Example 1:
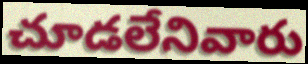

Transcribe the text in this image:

చూడలేనివారు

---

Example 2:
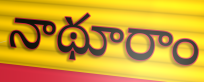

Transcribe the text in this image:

నాథూరాం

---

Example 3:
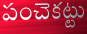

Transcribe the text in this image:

పంచెకట్టు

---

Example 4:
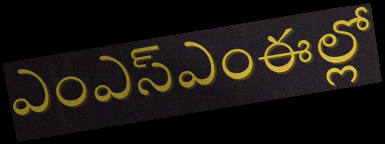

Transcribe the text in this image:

ఎంఎస్ఎంఈల్లో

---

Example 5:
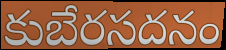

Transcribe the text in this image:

కుబేరసదనం